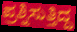
ಪ್ರಶ್ನಿಸುತ್ತಿದ್ದ